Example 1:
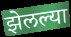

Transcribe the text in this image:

झेलल्या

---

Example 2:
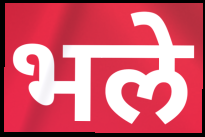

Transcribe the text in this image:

भले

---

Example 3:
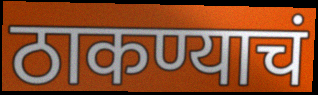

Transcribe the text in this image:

ठाकण्याचं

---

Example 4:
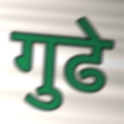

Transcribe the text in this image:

गुढे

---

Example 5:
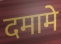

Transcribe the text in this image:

दमामे